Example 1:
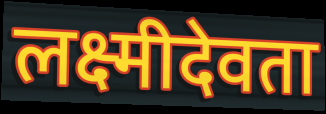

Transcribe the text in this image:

लक्ष्मीदेवता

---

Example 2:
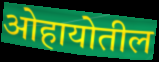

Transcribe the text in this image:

ओहायोतील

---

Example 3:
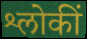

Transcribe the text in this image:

श्लोकीं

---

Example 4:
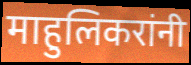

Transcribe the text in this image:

माहुलिकरांनी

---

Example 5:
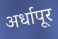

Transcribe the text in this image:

अर्धापूर